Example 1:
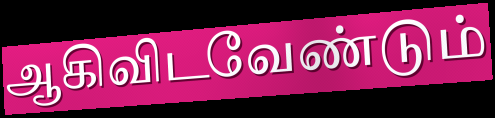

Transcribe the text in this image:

ஆகிவிடவேண்டும்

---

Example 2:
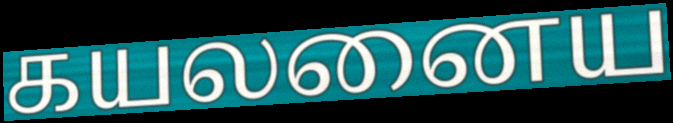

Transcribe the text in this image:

கயலனைய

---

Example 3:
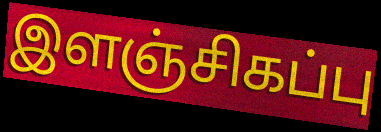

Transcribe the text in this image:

இளஞ்சிகப்பு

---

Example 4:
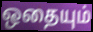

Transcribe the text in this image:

ஒதையும்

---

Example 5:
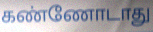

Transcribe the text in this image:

கண்ணோடாது